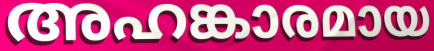
അഹങ്കാരമായ